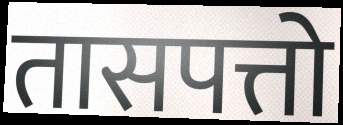
तासपत्तो